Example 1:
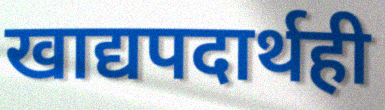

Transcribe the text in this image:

खाद्यपदार्थही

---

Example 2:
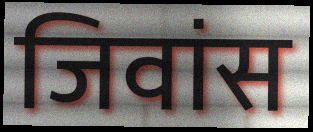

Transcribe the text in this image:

जिवांस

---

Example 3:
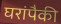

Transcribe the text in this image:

घरांपैकी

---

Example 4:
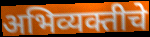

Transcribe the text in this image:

अभिव्यक्तीचे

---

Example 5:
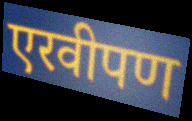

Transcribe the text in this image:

एरवीपण